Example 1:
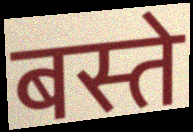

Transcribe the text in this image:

बस्ते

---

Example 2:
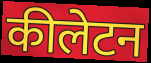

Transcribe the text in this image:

कीलेटन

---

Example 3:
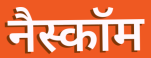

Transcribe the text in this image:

नैस्कॉम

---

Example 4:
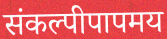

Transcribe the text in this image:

संकल्पीपापमय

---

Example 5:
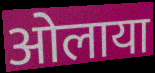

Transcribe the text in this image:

ओलाया